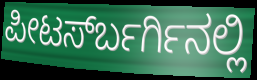
ಪೀಟರ್ಸ್‍ಬರ್ಗಿನಲ್ಲಿ